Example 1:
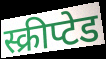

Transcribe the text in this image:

स्क्रीप्टेड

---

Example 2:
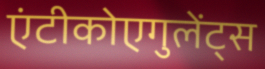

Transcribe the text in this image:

एंटीकोएगुलेंट्स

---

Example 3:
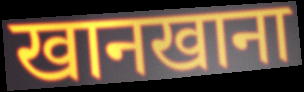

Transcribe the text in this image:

खानखाना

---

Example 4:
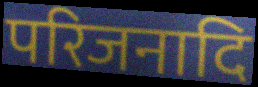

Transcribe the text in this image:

परिजनादि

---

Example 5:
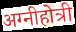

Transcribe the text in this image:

अग्नीहोत्री